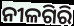
ନୀଳଗିରି